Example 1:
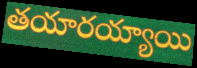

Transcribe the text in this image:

తయారయ్యాయి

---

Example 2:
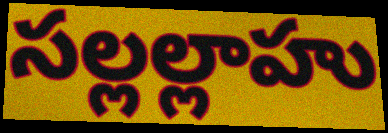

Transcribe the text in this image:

సల్లల్లాహు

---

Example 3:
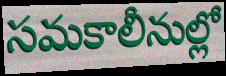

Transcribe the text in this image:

సమకాలీనుల్లో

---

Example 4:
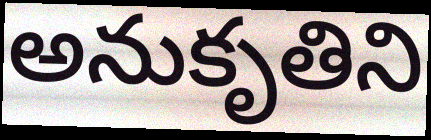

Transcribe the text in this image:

అనుకృతిని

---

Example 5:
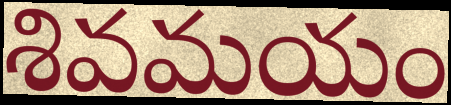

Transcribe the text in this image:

శివమయం